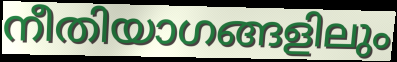
നീതിയാഗങ്ങളിലും